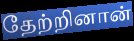
தேற்றினான்